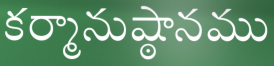
కర్మానుష్ఠానము